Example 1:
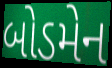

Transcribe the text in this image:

બોડમેન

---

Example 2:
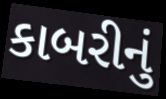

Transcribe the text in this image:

કાબરીનું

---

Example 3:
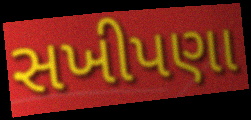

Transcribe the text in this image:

સખીપણા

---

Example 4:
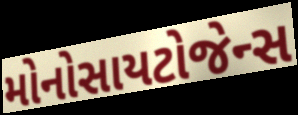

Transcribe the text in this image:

મોનોસાયટોજેન્સ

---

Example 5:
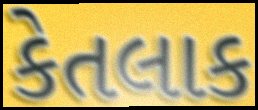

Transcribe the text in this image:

કેતલાક